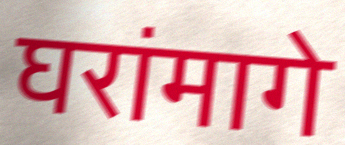
घरांमागे